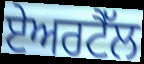
ਏਅਰਟੈੱਲ